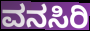
ವನಸಿರಿ